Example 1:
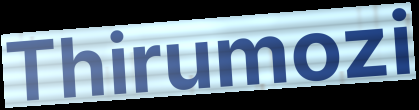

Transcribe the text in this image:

Thirumozi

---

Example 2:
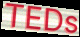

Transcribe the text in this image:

TEDs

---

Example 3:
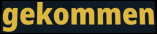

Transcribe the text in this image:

gekommen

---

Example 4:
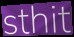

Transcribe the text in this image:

sthit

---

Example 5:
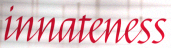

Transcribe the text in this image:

innateness